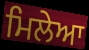
ਮਿਲੇਆ